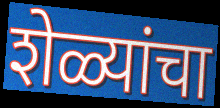
शेळ्यांचा